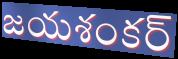
జయశంకర్